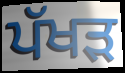
ਪੱਖੜ